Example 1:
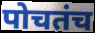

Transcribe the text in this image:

पोचतंच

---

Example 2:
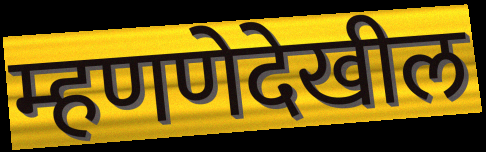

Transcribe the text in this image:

म्हणणेदेखील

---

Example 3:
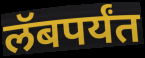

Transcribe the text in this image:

लॅबपर्यंत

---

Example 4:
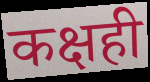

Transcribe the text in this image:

कक्षही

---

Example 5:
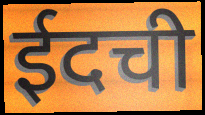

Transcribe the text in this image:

ईदची